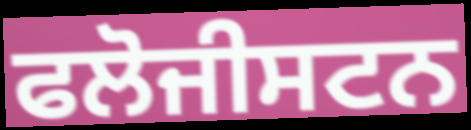
ਫਲੋਜੀਸਟਨ